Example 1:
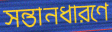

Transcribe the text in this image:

সন্তানধারণে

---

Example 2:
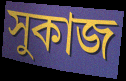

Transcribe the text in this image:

সুকাজ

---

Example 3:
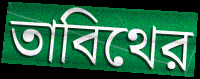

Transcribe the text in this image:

তাবিথের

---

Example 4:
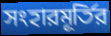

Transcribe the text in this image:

সংহারমূর্তির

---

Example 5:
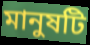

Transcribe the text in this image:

মানুষটি